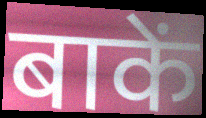
बाकें